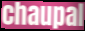
chaupal